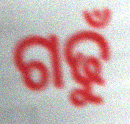
ଗଢୁଁ